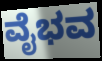
ವೈಭವ